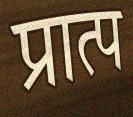
प्रात्प